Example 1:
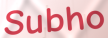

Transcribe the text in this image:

Subho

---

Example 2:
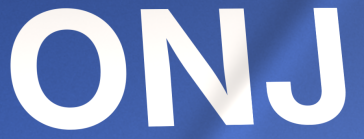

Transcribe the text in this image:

ONJ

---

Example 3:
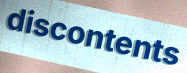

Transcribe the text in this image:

discontents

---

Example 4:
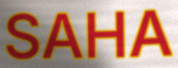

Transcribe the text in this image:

SAHA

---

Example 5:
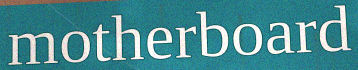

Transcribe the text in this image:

motherboard